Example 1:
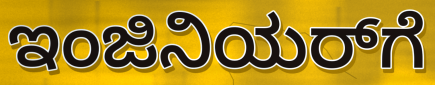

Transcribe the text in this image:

ಇಂಜಿನಿಯರ್‌ಗೆ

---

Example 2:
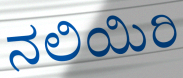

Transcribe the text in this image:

ನಲಿಯಿರಿ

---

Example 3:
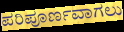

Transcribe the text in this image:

ಪರಿಪೂರ್ಣವಾಗಲು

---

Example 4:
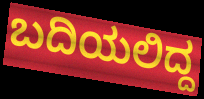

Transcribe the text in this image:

ಬದಿಯಲಿದ್ದ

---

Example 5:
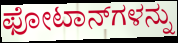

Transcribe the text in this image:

ಫೋಟಾನ್‌ಗಳನ್ನು